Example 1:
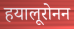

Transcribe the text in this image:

हयालूरोनन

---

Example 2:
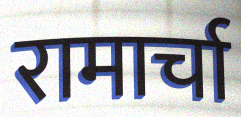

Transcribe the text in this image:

रामार्चा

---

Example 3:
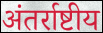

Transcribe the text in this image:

अंतर्राष्टीय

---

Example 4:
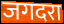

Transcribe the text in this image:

जगदरा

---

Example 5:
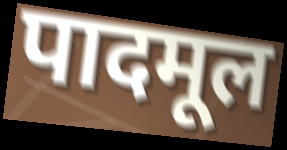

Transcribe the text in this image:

पादमूल